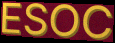
ESOC